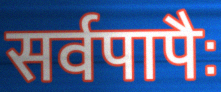
सर्वपापैः